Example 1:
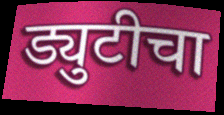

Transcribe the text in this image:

ड्युटीचा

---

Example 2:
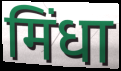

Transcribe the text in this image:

मिंधा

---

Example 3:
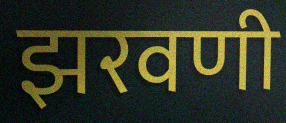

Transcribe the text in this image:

झरवणी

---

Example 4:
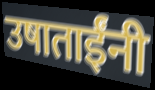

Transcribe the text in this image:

उषाताईंनी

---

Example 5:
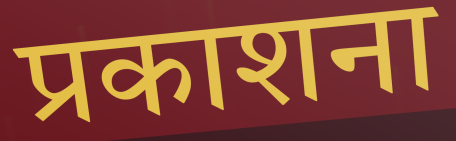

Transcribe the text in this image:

प्रकाशना